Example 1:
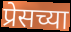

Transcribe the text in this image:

प्रेसच्या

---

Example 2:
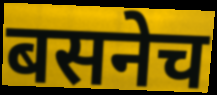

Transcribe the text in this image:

बसनेच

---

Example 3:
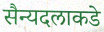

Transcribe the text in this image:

सैन्यदलाकडे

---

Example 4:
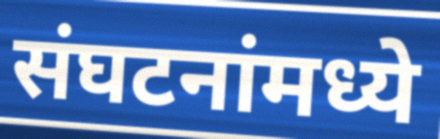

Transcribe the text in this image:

संघटनांमध्ये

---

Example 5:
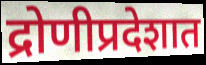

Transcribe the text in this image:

द्रोणीप्रदेशात